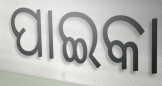
ପାଇକା